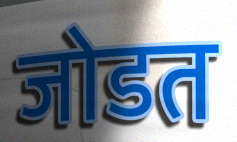
जोडत